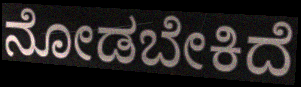
ನೋಡಬೇಕಿದೆ